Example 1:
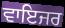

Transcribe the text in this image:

ਵਾਇਜਰ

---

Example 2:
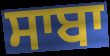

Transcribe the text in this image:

ਸਾਬਾ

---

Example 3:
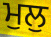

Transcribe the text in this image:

ਮੁਲੁ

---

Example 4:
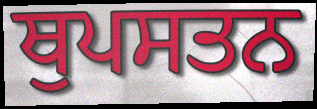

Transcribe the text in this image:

ਥੁਪਸਤਨ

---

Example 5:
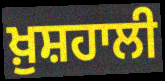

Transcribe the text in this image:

ਖ਼ੁਸ਼ਹਾਲੀ